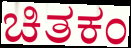
ಚಿತಕಂ